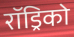
रॉड्रिको